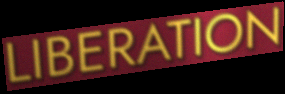
LIBERATION